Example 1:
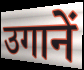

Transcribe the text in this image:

उगानें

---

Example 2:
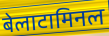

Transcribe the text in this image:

बेलाटामिनल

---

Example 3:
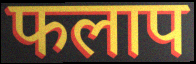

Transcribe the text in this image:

फलाप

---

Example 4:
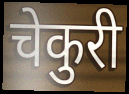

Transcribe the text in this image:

चेकुरी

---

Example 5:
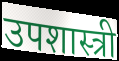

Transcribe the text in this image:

उपशास्त्री